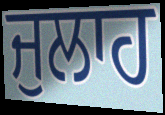
ਜੁਲਾਹ